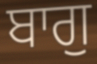
ਬਾਗੁ